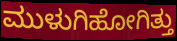
ಮುಳುಗಿಹೋಗಿತ್ತು